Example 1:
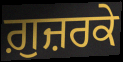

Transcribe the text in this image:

ਗ਼ੁਜ਼ਰਕੇ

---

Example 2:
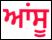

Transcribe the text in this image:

ਆਂਸੂ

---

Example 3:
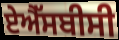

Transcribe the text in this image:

ਏਐੱਸਬੀਸੀ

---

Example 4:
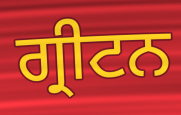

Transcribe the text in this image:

ਗ੍ਰੀਟਨ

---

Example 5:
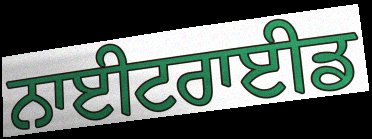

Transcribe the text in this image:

ਨਾਈਟਰਾਈਡ